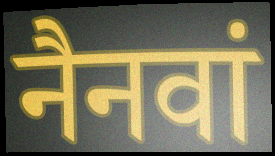
नैनवां